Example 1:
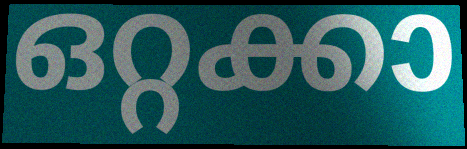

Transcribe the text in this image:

ഒറ്റക്കാ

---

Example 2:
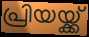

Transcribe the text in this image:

പ്രിയയ്ക്ക്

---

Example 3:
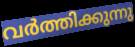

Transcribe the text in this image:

വർത്തിക്കുന്നു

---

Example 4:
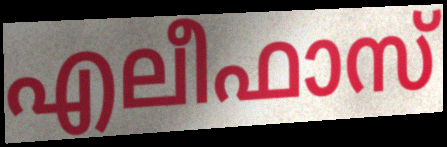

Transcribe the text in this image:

എലീഫാസ്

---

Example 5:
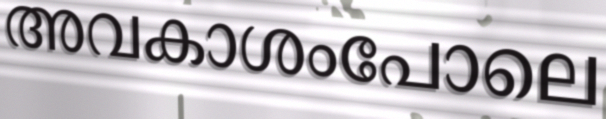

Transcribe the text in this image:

അവകാശംപോലെ